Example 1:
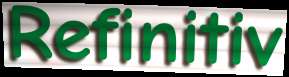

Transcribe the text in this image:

Refinitiv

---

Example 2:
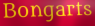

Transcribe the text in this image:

Bongarts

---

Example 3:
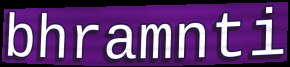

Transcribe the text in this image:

bhramnti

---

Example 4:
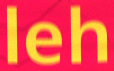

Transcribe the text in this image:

leh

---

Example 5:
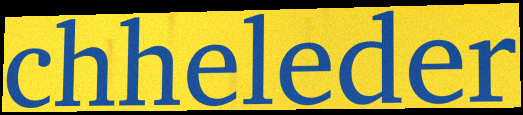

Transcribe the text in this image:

chheleder